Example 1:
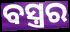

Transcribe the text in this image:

ବସ୍ତ୍ରର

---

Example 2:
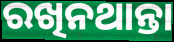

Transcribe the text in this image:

ରଖିନଥାନ୍ତା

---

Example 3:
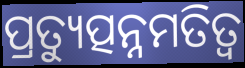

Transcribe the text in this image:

ପ୍ରତ୍ୟୁତ୍ପନ୍ନମତିତ୍ୱ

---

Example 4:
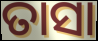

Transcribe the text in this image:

ତାସା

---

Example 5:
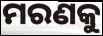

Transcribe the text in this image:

ମରଣକୁ